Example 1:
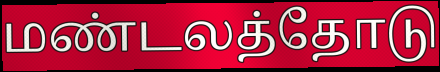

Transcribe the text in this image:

மண்டலத்தோடு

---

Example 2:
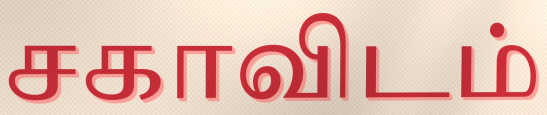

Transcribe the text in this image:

சகாவிடம்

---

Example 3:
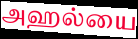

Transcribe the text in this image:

அஹல்யை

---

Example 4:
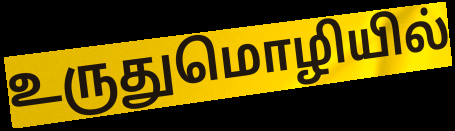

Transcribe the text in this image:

உருதுமொழியில்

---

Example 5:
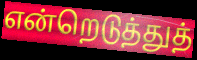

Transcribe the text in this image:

என்றெடுத்துத்